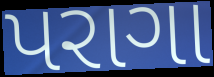
પરાગા